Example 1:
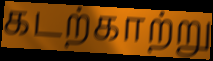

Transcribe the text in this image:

கடற்காற்று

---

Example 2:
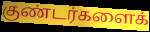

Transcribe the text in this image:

குண்டர்களைக்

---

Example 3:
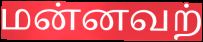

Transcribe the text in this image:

மன்னவற்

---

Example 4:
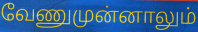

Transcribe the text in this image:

வேணுமுன்னாலும்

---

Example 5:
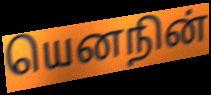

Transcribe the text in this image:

யெனநின்